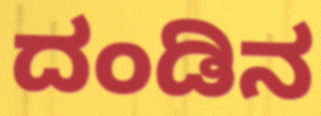
ದಂಡಿನ